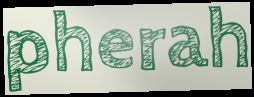
pherah